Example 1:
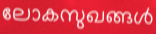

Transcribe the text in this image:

ലോകസുഖങ്ങൾ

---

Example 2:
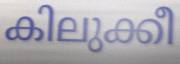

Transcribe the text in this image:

കിലുക്കീ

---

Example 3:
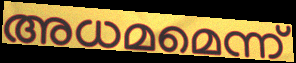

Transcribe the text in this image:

അധമമെന്ന്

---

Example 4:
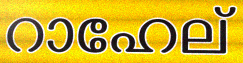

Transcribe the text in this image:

റാഹേല്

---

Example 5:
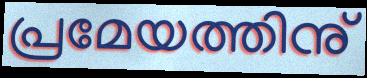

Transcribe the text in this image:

പ്രമേയത്തിനു്